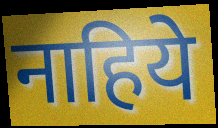
नाहिये